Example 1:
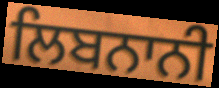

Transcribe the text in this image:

ਲਿਬਨਾਨੀ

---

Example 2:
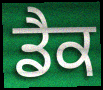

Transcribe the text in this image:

ਡੈਕ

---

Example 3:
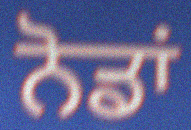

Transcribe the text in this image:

ਨੋਡਾਂ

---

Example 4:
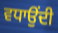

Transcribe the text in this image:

ਵਧਾਉਂਦੀ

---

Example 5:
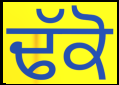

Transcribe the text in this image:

ਢੱਕੋ